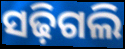
ସଢ଼ିଗଲି